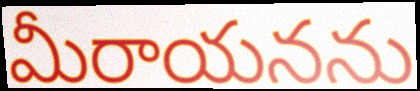
మీరాయనను